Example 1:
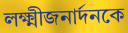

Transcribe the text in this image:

লক্ষ্মীজনার্দনকে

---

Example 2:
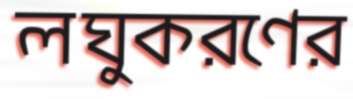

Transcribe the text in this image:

লঘুকরণের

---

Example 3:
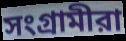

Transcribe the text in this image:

সংগ্রামীরা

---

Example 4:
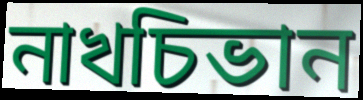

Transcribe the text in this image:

নাখচিভান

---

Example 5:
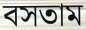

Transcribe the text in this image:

বসতাম